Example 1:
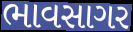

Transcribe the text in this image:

ભાવસાગર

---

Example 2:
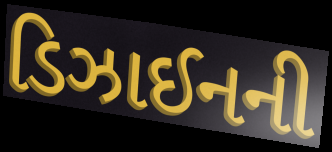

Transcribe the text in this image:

ડિઝાઈનની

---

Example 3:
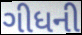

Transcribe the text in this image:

ગીધની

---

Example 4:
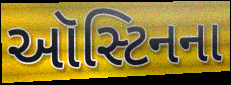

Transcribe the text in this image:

ઑસ્ટિનના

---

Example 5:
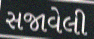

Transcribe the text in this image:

સજાવેલી